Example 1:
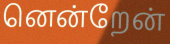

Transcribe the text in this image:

னென்றேன்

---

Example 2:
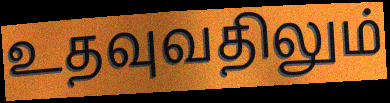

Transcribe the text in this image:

உதவுவதிலும்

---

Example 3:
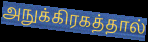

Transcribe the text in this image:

அநுக்கிரகத்தால்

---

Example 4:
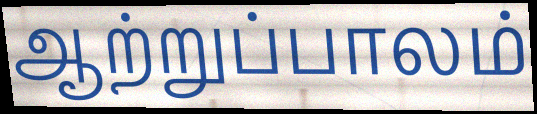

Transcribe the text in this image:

ஆற்றுப்பாலம்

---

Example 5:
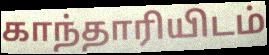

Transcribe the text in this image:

காந்தாரியிடம்